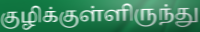
குழிக்குள்ளிருந்து